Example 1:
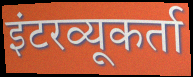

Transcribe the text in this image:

इंटरव्यूकर्ता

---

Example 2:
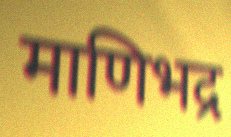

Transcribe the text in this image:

माणिभद्र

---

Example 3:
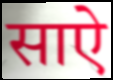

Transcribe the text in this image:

साऐ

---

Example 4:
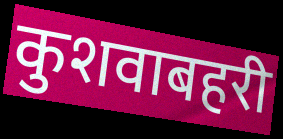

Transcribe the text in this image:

कुशवाबहरी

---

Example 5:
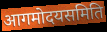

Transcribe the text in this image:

आगमोदयसमिति